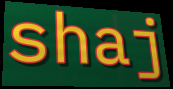
shaj